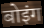
बोइंग